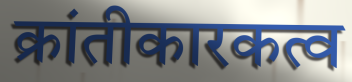
क्रांतीकारकत्व